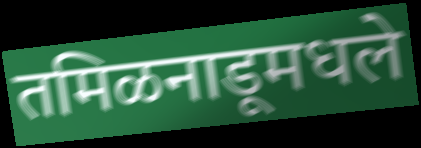
तमिळनाडूमधले